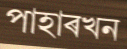
পাহাৰখন